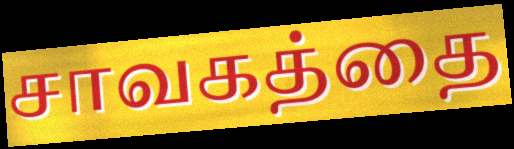
சாவகத்தை